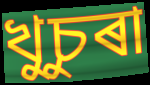
খুচুৰা